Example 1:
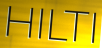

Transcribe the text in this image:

HILTI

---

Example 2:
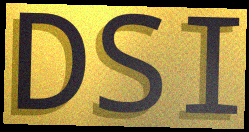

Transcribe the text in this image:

DSI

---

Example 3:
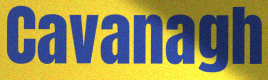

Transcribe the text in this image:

Cavanagh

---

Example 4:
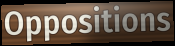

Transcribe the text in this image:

Oppositions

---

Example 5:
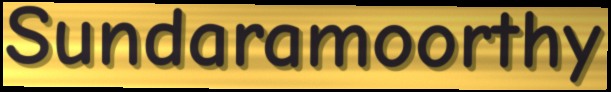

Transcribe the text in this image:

Sundaramoorthy